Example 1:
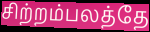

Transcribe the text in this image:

சிற்றம்பலத்தே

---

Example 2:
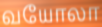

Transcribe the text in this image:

வயோலா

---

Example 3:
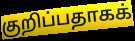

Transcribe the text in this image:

குறிப்பதாகக்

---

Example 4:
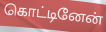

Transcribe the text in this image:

கொட்டினேன்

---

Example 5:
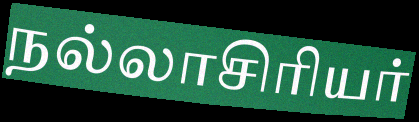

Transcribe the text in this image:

நல்லாசிரியர்